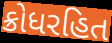
ક્રોધરહિત